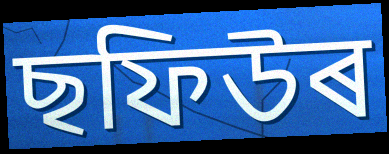
ছফিউৰ